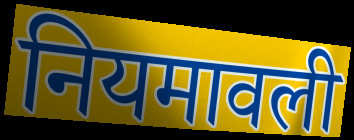
नियमावली